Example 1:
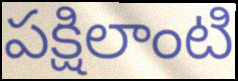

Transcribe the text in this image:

పక్షిలాంటి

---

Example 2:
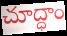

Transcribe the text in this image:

చూద్ధాం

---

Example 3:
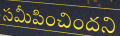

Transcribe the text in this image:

సమీపించిందని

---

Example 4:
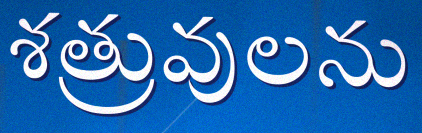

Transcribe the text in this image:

శత్రువులను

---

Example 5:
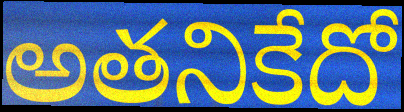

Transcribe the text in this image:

అతనికేదో